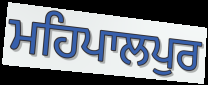
ਮਹਿਪਾਲਪੁਰ